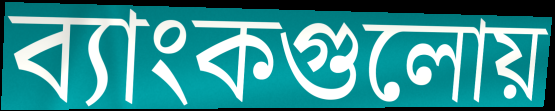
ব্যাংকগুলোয়